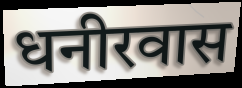
धनीरवास